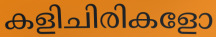
കളിചിരികളോ